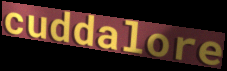
cuddalore